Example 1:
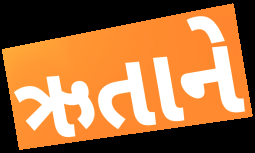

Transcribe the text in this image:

ઋતાને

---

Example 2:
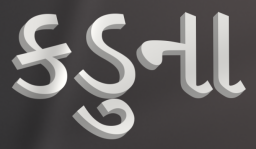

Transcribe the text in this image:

કડુના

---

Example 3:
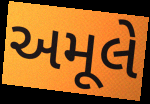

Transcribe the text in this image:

અમૂલે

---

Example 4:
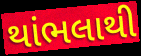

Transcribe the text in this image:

થાંભલાથી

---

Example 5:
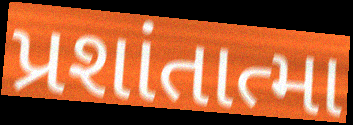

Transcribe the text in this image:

પ્રશાંતાત્મા